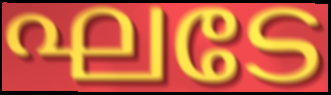
ഘടേ